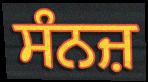
ਸੰਨਜ਼